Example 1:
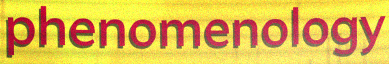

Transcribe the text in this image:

phenomenology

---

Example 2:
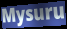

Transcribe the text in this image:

Mysuru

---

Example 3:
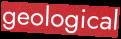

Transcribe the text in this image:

geological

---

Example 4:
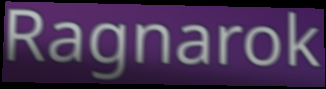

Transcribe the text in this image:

Ragnarok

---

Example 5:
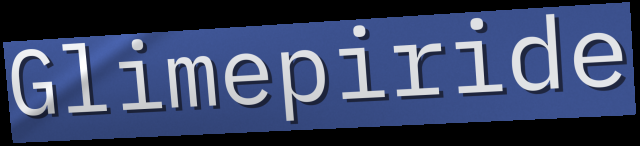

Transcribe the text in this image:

Glimepiride